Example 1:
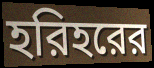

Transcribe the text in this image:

হরিহরের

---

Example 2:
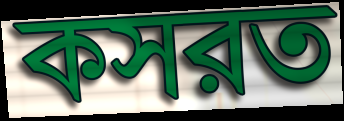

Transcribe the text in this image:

কসরত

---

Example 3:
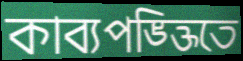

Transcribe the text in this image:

কাব্যপঙ্ক্তিতে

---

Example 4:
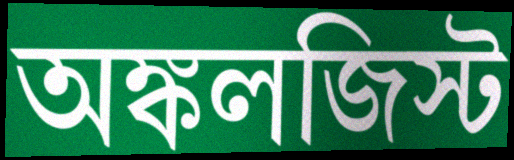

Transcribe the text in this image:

অঙ্কলজিস্ট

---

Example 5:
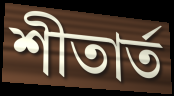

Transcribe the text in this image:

শীতার্ত